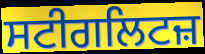
ਸਟੀਗਲਿਟਜ਼